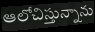
ఆలోచిస్తున్నాను